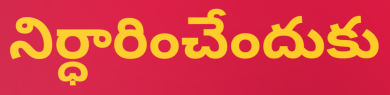
నిర్ధారించేందుకు